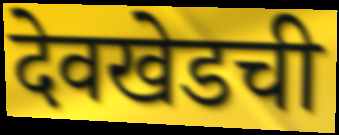
देवखेडची